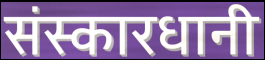
संस्कारधानी